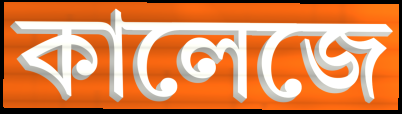
কালেজে